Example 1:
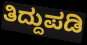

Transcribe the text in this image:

ತಿದ್ದುಪಡಿ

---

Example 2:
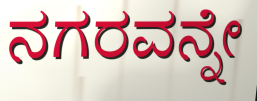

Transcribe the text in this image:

ನಗರವನ್ನೇ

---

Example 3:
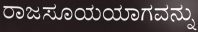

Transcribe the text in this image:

ರಾಜಸೂಯಯಾಗವನ್ನು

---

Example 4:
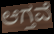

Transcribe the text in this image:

ಆಗ್ತವೆ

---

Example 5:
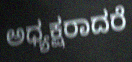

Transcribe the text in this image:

ಅಧ್ಯಕ್ಷರಾದರೆ